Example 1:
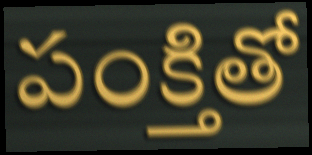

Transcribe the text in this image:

పంక్తితో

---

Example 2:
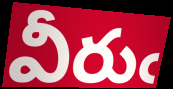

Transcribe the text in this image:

వీరుఁ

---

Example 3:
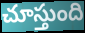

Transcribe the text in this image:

చూస్తుంది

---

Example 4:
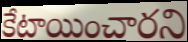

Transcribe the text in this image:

కేటాయించారని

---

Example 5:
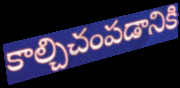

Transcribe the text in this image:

కాల్చిచంపడానికి